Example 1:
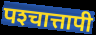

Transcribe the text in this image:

पश्‍चात्तापी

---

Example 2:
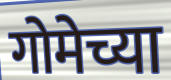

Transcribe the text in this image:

गोमेच्या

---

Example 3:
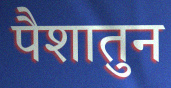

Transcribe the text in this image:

पैशातुन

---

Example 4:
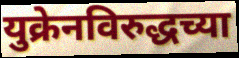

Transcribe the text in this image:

युक्रेनविरुद्धच्या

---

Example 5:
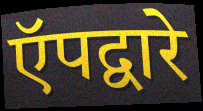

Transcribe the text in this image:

ऍपद्वारे